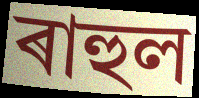
ৰাহুল